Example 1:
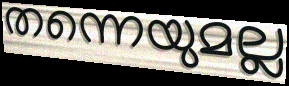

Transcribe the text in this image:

തന്നെയുമല്ല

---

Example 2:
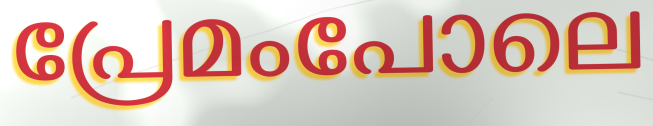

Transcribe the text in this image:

പ്രേമംപോലെ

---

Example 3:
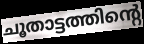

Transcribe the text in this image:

ചൂതാട്ടത്തിന്റെ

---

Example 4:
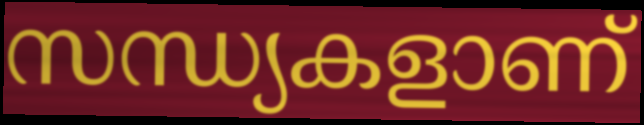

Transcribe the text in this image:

സന്ധ്യകളാണ്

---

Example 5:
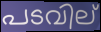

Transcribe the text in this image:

പടവില്